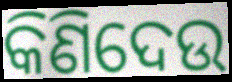
କିଣିଦେଉ